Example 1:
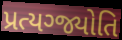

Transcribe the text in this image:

પ્રત્યગ્જ્યોતિ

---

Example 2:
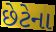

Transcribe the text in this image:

છેટેના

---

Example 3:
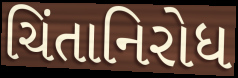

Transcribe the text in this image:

ચિંતાનિરોધ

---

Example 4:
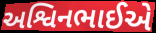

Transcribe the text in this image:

અશ્વિનભાઈએ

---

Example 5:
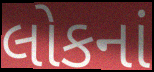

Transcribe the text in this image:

લોકનાં